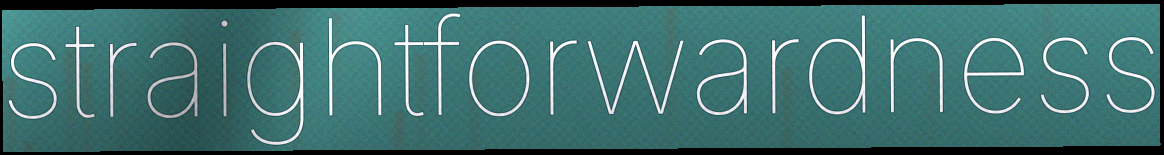
straightforwardness